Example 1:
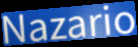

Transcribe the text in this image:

Nazario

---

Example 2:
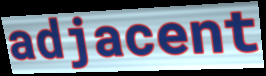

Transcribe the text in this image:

adjacent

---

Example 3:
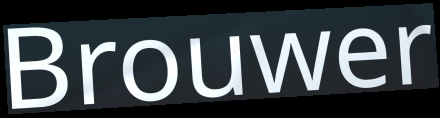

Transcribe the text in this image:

Brouwer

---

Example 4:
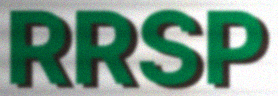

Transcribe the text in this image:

RRSP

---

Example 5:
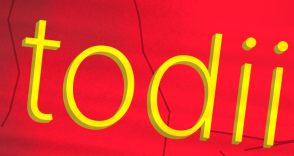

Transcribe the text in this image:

todii